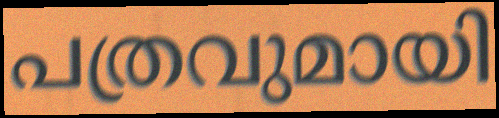
പത്രവുമായി